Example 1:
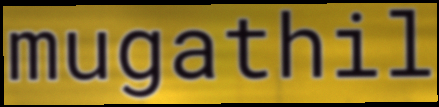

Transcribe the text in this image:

mugathil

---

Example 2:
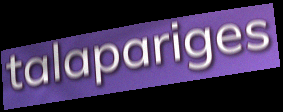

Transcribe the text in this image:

talapariges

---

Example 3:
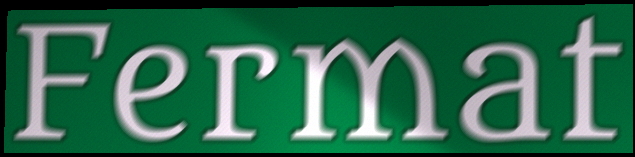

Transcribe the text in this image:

Fermat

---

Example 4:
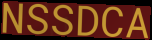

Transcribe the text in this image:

NSSDCA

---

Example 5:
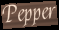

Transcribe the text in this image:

Pepper